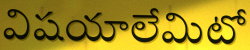
విషయాలేమిటో